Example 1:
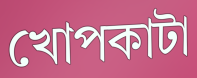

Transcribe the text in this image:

খোপকাটা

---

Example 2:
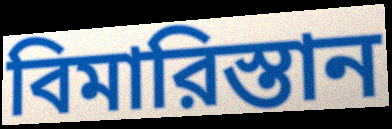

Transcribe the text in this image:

বিমারিস্তান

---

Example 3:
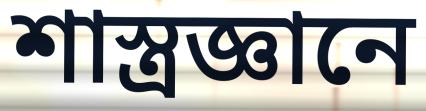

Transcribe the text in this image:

শাস্ত্রজ্ঞানে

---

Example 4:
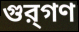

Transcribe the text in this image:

গুর্‌গণ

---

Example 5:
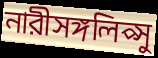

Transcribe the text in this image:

নারীসঙ্গলিপ্সু